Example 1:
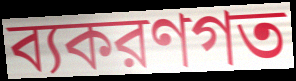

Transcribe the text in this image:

ব্যকরণগত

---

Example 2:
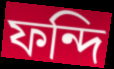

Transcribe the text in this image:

ফন্দি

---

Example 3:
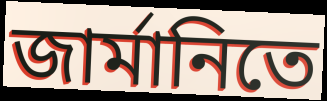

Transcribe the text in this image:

জার্মানিতে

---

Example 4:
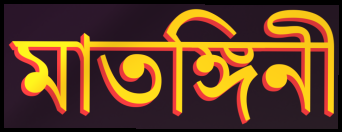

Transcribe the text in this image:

মাতঙ্গিনী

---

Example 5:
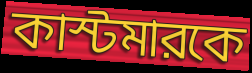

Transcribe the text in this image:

কাস্টমারকে